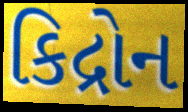
કિદ્રોન